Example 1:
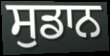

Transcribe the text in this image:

ਸੁਡਾਨ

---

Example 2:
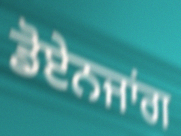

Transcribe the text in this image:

ਡੋਏਨਜਾਂਗ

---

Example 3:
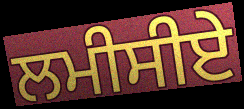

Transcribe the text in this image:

ਲਮੀਸੀਏ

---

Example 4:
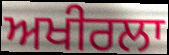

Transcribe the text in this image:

ਅਖੀਰਲਾ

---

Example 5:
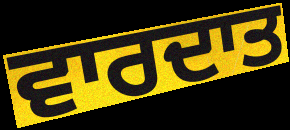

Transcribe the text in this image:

ਵਾਰਦਾਤ